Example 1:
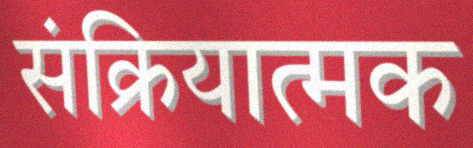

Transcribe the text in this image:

संक्रियात्मक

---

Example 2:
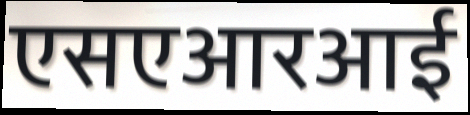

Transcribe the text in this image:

एसएआरआई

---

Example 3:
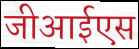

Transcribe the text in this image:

जीआईएस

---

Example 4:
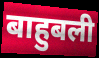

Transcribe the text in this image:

बाहुबली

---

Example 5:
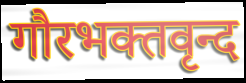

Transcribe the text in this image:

गौरभक्तवृन्द